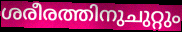
ശരീരത്തിനുചുറ്റും